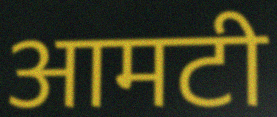
आमटी